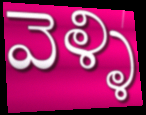
వెళ్ళి